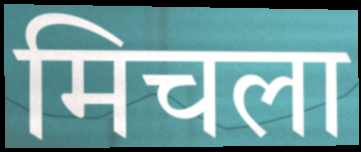
मिचला